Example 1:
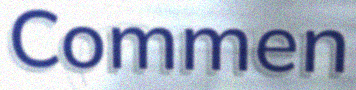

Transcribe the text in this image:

Commen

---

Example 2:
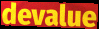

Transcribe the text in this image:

devalue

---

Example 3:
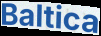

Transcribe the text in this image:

Baltica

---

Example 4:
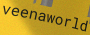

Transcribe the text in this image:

veenaworld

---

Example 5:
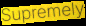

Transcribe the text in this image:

Supremely